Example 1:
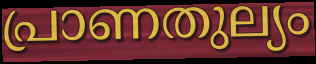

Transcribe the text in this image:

പ്രാണതുല്യം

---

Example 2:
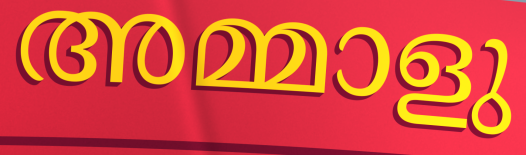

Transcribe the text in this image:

അമ്മാളു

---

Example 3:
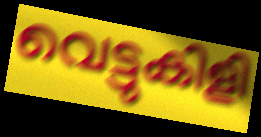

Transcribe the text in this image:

വെട്ടുകിളി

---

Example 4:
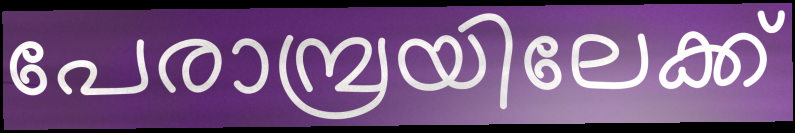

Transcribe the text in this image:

പേരാമ്പ്രയിലേക്ക്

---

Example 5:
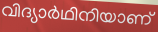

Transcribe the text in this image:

വിദ്യാർഥിനിയാണ്